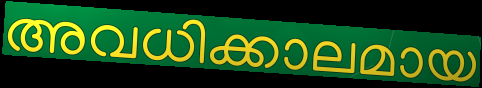
അവധിക്കാലമായ